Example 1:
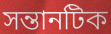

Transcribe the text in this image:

সন্তানটিক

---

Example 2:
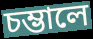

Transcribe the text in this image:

চম্ভালে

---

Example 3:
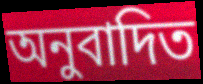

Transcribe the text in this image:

অনুবাদিত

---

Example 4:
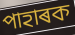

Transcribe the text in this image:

পাহাৰক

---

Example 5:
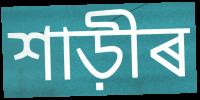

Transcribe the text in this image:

শাড়ীৰ